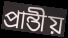
প্ৰান্তীয়